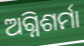
ଅଗ୍ନିଶର୍ମା